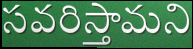
సవరిస్తామని